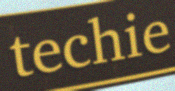
techie